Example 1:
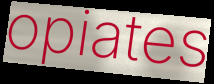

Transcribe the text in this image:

opiates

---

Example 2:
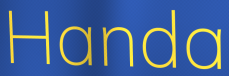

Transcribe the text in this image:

Handa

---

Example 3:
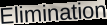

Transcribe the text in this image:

Elimination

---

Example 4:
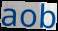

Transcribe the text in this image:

aob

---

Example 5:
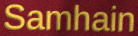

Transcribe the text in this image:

Samhain